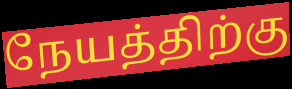
நேயத்திற்கு